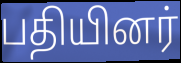
பதியினர்